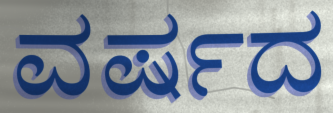
ವರ್ಷದ